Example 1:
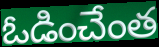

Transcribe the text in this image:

ఓడించేంత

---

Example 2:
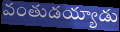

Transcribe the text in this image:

వంతుడయ్యాడు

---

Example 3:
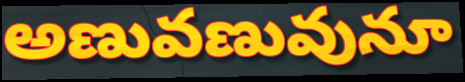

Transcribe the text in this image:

అణువణువునూ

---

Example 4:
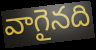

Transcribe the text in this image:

వాగైనది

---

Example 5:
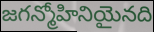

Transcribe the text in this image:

జగన్మోహినియైనది